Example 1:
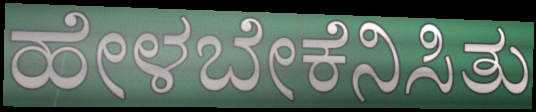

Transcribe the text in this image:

ಹೇಳಬೇಕೆನಿಸಿತು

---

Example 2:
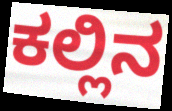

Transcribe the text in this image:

ಕಲ್ಲಿನ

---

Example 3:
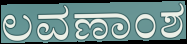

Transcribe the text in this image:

ಲವಣಾಂಶ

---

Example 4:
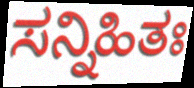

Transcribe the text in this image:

ಸನ್ನಿಹಿತಃ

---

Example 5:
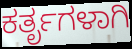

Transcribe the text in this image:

ಕರ್ತೃಗಳಾಗಿ